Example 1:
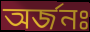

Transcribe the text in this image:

অর্জনঃ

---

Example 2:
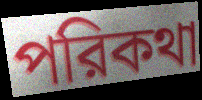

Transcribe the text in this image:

পরিকথা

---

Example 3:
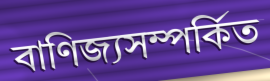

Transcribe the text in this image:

বাণিজ্যসম্পর্কিত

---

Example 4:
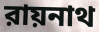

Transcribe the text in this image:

রায়নাথ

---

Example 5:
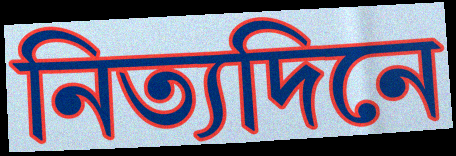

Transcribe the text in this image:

নিত্যদিনে